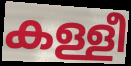
കള്ളീ